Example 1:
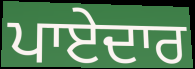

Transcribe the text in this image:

ਪਾਏਦਾਰ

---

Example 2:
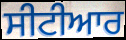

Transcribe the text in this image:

ਸੀਟੀਆਰ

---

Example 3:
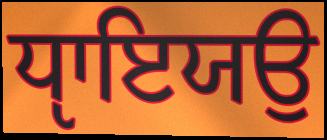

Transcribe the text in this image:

ਧੵਾਇਯਉ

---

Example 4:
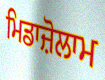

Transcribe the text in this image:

ਮਿਡਾਜ਼ੋਲਾਮ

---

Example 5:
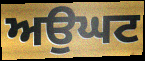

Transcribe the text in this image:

ਅਉਘਟ